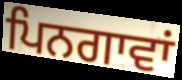
ਪਿਨਗਾਵਾਂ